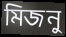
মিজনু